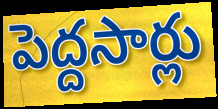
పెద్దసార్లు